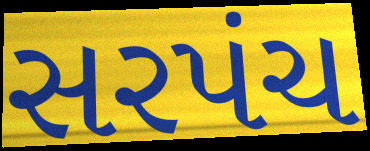
સરપંચ